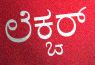
ಲೆಕ್ಚರ್